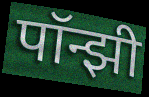
पॉन्झी